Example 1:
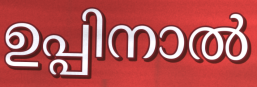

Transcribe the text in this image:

ഉപ്പിനാൽ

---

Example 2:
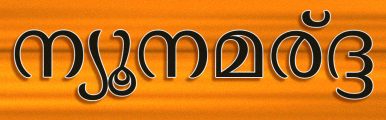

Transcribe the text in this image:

ന്യൂനമര്ദ്ദ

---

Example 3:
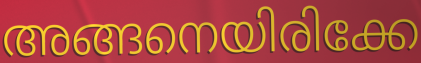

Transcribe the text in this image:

അങ്ങനെയിരിക്കേ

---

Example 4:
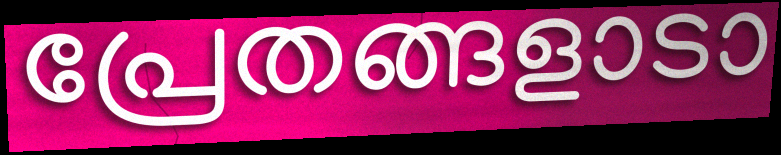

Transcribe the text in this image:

പ്രേതങ്ങളാടാ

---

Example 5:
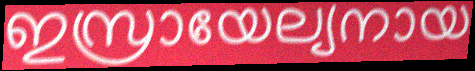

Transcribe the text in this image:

ഇസ്രായേല്യനായ